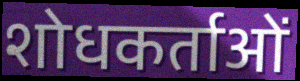
शोधकर्ताओं